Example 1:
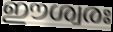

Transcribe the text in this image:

ഈശ്വരഃ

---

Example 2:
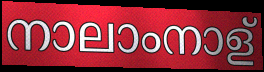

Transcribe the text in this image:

നാലാംനാള്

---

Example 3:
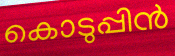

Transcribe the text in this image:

കൊടുപ്പിൻ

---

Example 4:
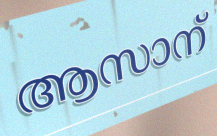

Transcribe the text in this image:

ആസാന്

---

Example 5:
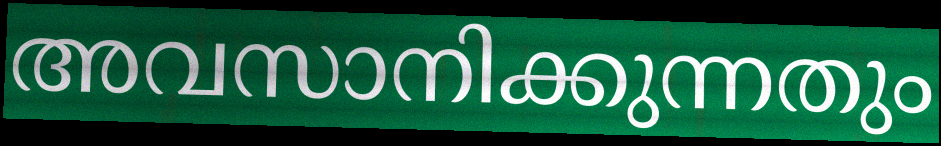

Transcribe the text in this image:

അവസാനിക്കുന്നതും